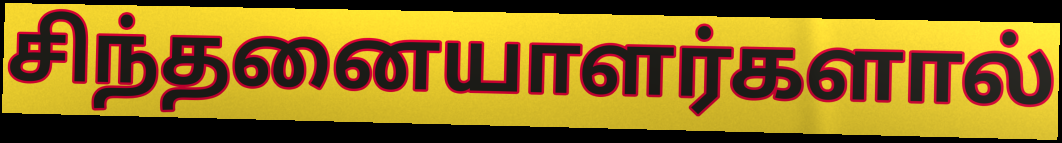
சிந்தனையாளர்களால்